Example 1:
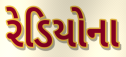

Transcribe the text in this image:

રેડિયોના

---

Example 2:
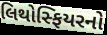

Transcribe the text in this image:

લિથોસ્ફિયરનો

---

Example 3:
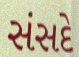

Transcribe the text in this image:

સંસદે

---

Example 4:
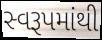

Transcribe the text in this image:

સ્વરૂપમાંથી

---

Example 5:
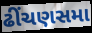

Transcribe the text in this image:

ઢીંચણસમા